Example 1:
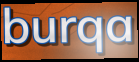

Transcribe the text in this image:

burqa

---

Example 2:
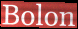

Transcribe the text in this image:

Bolon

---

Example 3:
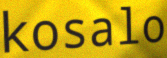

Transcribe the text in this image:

kosalo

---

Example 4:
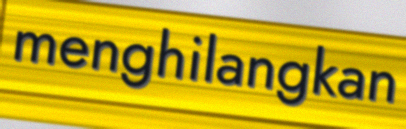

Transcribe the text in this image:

menghilangkan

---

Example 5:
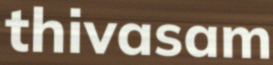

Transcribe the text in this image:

thivasam